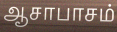
ஆசாபாசம்